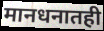
मानधनातही